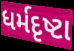
ધર્મદૃષ્ટા